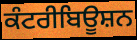
ਕੰਟਰੀਬਿਊਸ਼ਨ